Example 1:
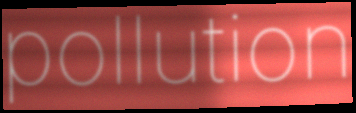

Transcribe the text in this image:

pollution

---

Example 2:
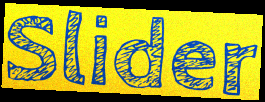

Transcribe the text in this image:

Slider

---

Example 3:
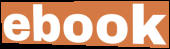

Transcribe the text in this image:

ebook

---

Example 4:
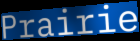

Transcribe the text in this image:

Prairie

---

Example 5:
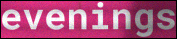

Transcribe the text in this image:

evenings